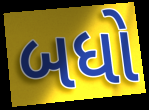
બધો